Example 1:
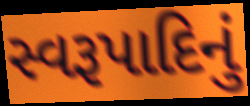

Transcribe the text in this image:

સ્વરૂપાદિનું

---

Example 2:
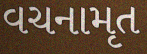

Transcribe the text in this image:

વચનામૃત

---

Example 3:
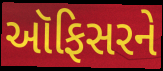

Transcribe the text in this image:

ઑફિસરને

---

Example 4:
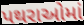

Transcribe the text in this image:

પથરાઓમાં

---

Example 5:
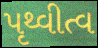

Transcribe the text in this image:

પૃથ્વીત્વ